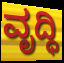
ವೃದ್ಧಿ